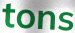
tons